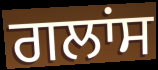
ਗਲਾਂਸ